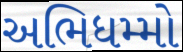
અભિધમ્મો